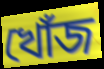
খোঁজ